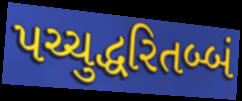
પચ્ચુદ્ધરિતબ્બં